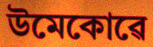
উমেকোৱে